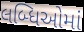
લબ્ધિઓમાં